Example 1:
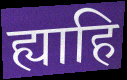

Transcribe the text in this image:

ह्याहि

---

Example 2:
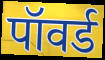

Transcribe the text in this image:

पॉवर्ड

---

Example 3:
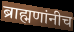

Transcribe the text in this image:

ब्राह्मणांनीच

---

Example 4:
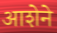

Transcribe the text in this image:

आशेने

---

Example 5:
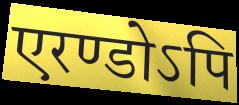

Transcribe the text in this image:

एरण्डोऽपि